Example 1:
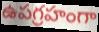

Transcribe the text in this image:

ఉపగ్రహంగా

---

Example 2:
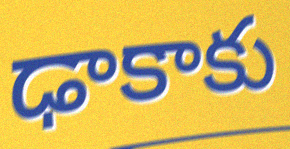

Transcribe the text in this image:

ఢాకాకు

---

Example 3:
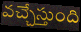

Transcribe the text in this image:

వచ్చేస్తుంది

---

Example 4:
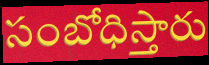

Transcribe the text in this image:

సంబోధిస్తారు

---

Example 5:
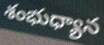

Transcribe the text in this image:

శంభుధ్యాన